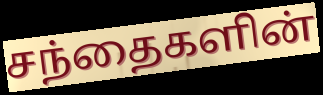
சந்தைகளின்